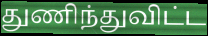
துணிந்துவிட்ட